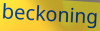
beckoning